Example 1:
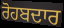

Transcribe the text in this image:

ਰੋਹਬਦਾਰ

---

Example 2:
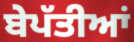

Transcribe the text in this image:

ਬੇਪੱਤੀਆਂ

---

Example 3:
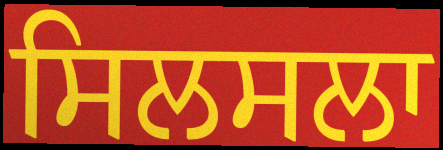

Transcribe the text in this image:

ਸਿਲਸਲਾ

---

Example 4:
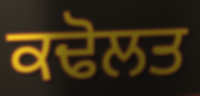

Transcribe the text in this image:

ਕਢੋਲਤ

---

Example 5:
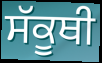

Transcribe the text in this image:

ਸੱਕੂਥੀ